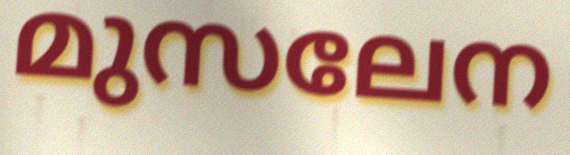
മുസലേന